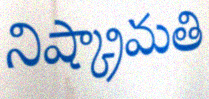
నిష్క్రామతి